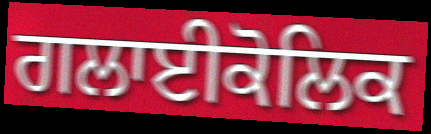
ਗਲਾਈਕੋਲਿਕ